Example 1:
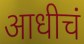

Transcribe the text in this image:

आधीचं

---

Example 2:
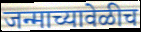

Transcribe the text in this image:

जन्माच्यावेळीच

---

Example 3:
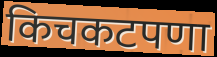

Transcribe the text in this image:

किचकटपणा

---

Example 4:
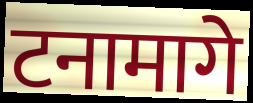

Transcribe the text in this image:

टनामागे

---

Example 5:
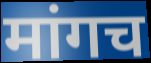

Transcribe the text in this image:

मांगच